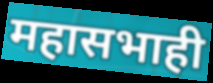
महासभाही